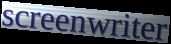
screenwriter